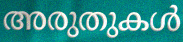
അരുതുകൾ